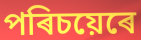
পৰিচয়েৰে